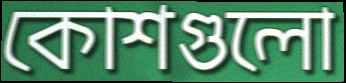
কোশগুলো